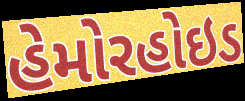
હેમોરહોઇડ